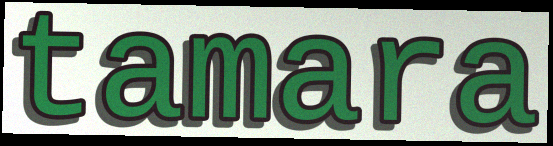
tamara